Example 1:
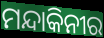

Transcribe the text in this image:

ମନ୍ଦାକିନୀର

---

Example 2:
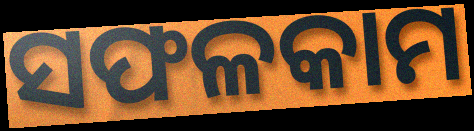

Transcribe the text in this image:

ସଫଳକାମ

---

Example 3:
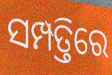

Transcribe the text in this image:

ସମ୍ପତ୍ତିରେ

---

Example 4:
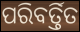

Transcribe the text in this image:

ପରିବର୍ତ୍ତିତ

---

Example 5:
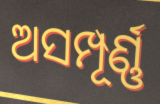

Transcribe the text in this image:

ଅସମ୍ପୂର୍ଣ୍ଣ